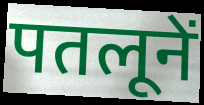
पतलूनें